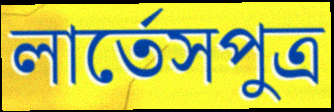
লার্তেসপুত্র